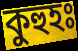
কুহুহঃ